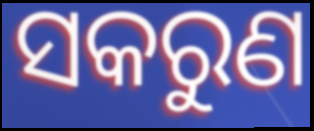
ସକରୁଣ